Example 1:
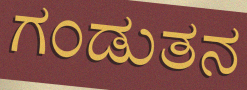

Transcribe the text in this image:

ಗಂಡುತನ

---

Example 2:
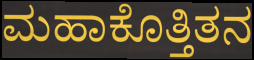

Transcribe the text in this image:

ಮಹಾಕೊತ್ತಿತನ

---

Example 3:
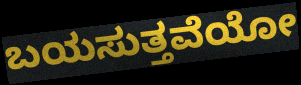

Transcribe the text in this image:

ಬಯಸುತ್ತವೆಯೋ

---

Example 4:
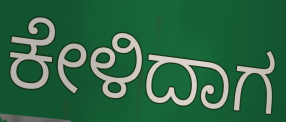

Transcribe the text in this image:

ಕೇಳಿದಾಗ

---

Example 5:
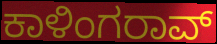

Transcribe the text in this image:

ಕಾಳಿಂಗರಾವ್